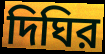
দিঘির